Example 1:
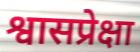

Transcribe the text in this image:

श्वासप्रेक्षा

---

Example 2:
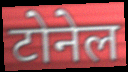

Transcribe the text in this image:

टोनेल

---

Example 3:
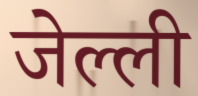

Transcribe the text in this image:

जेल्ली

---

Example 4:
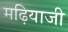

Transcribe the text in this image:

मढ़ियाजी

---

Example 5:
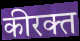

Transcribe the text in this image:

कीरक्त